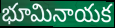
భూమినాయక